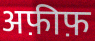
अफ़ीफ़